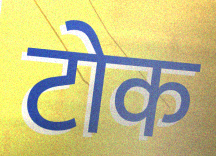
टोक